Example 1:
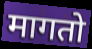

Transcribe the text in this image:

मागतो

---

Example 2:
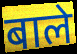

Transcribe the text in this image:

बाले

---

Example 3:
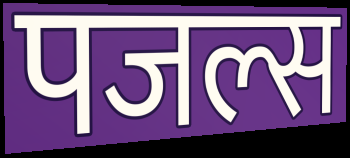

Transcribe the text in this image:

पजल्स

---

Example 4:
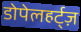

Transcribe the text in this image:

डोपेलहर्ट्ज़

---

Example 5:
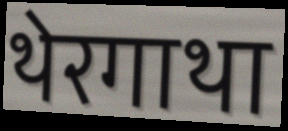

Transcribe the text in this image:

थेरगाथा